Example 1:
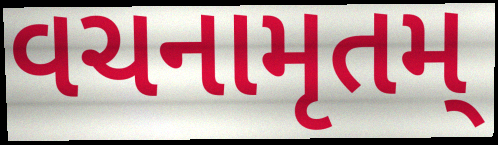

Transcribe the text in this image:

વચનામૃતમ્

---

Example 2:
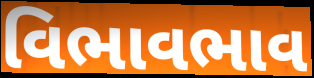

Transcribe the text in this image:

વિભાવભાવ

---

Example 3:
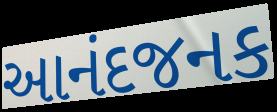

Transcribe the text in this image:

આનંદજનક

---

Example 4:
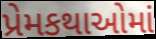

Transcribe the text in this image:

પ્રેમકથાઓમાં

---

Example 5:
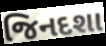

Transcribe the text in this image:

જિનદશા